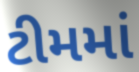
ટીમમાં